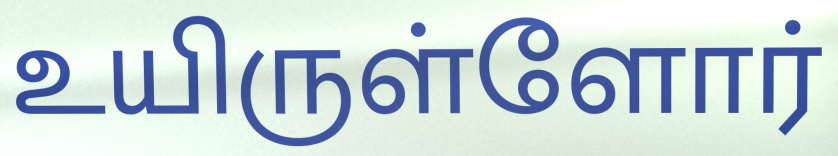
உயிருள்ளோர்